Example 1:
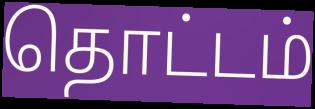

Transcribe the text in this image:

தொட்டம்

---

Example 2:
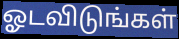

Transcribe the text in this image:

ஓடவிடுங்கள்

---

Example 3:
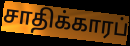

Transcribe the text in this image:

சாதிக்காரப்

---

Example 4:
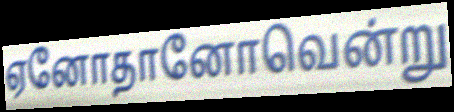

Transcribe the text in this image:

ஏனோதானோவென்று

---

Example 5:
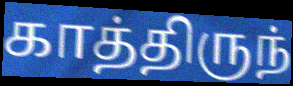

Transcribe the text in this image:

காத்திருந்